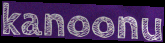
kanoonu